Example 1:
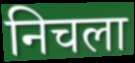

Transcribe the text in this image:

निचला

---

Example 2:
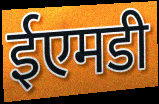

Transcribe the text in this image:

ईएमडी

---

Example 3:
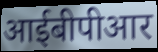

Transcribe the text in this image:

आईबीपीआर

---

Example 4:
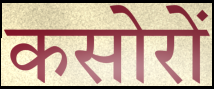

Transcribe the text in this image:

कसोरों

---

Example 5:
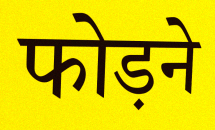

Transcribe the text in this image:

फोड़ने